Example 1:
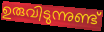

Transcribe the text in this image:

ഉരുവിടുന്നുണ്ട്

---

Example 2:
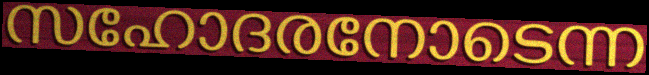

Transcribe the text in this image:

സഹോദരനോടെന്ന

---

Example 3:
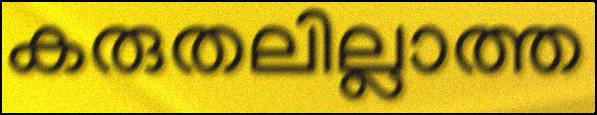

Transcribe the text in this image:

കരുതലില്ലാത്ത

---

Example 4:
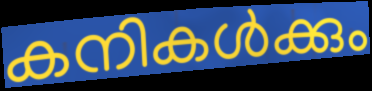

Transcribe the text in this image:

കനികൾക്കും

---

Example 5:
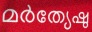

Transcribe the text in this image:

മർത്യേഷു